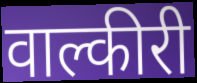
वाल्कीरी